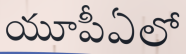
యూపీఏలో